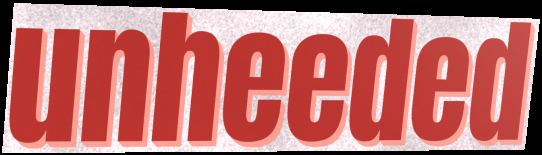
unheeded